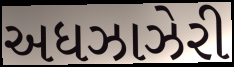
અધઝાઝેરી